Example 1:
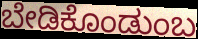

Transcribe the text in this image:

ಬೇಡಿಕೊಂಡುಂಬ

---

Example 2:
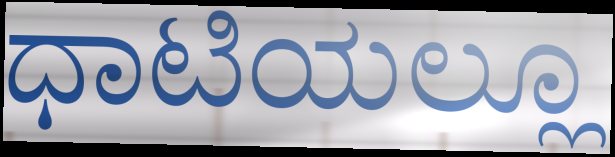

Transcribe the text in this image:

ಧಾಟಿಯಲ್ಲೂ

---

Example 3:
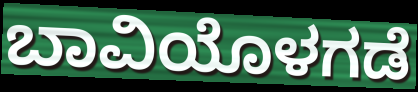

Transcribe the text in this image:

ಬಾವಿಯೊಳಗಡೆ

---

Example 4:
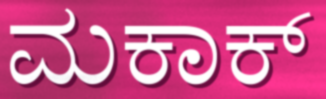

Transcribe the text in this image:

ಮಕಾಕ್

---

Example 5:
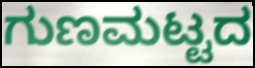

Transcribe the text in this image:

ಗುಣಮಟ್ಟದ